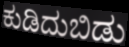
ಕುಡಿದುಬಿಡು